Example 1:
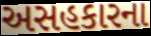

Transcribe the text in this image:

અસહકારના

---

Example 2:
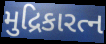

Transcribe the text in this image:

મુદ્રિકારત્ન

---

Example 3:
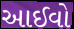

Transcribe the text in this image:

આઈવો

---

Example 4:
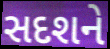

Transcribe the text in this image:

સદશને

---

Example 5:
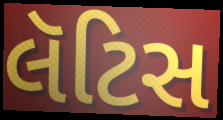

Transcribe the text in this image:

લૅટિસ